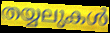
തയ്യലുകൾ